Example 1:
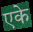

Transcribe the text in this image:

एके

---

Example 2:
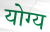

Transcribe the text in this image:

योग्य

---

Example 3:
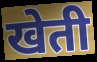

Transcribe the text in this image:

खेती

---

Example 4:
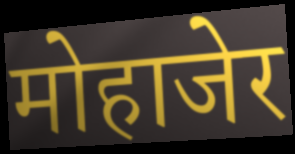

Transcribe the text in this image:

मोहाजेर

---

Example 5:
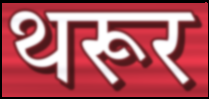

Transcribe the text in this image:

थरूर